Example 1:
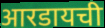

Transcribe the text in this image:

आरडायची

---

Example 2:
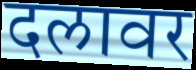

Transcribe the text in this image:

दलावर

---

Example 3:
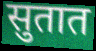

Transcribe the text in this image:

सुतात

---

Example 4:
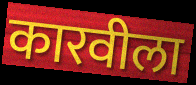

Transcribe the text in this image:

कारवीला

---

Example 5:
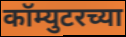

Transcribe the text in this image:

कॉम्युटरच्या